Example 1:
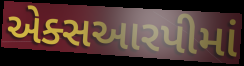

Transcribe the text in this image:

એક્સઆરપીમાં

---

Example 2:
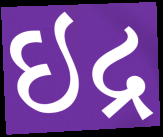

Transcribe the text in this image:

ઇદ્ર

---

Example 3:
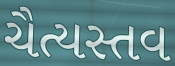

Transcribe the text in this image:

ચૈત્યસ્તવ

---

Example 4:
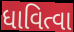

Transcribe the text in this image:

ધાવિત્વા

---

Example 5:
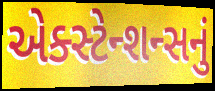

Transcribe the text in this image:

એક્સ્ટેન્શન્સનું